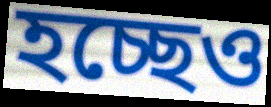
হচ্ছেও